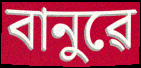
বানুৱে